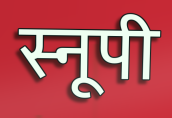
स्नूपी